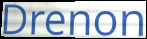
Drenon